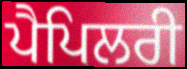
ਪੈਪਿਲਰੀ